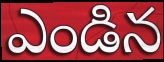
ఎండిన